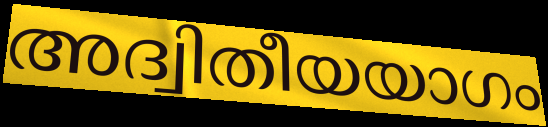
അദ്വിതീയയാഗം